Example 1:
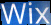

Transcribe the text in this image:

Wix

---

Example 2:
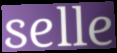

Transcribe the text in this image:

selle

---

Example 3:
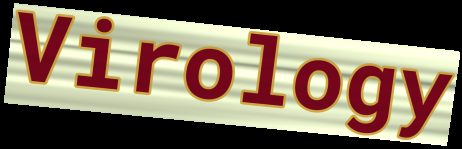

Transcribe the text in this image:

Virology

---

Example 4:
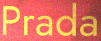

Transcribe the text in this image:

Prada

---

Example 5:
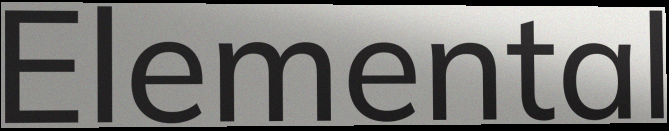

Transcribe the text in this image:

Elemental